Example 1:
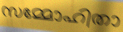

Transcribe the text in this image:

സമ്മോഹിതാ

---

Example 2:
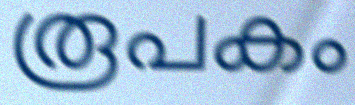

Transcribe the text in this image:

രൂപകം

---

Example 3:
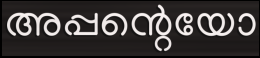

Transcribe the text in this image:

അപ്പന്റെയോ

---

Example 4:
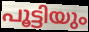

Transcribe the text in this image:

പൂട്ടിയും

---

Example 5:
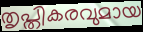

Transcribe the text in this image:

തൃപ്തികരവുമായ